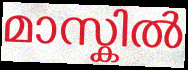
മാസ്കിൽ